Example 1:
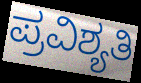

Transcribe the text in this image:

ಪ್ರವಿಶ್ಯತಿ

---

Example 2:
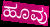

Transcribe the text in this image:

ಹೂವು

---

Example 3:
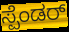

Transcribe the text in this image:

ಸ್ಪೆಂಡರ್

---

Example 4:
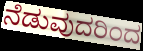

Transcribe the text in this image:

ನೆಡುವುದರಿಂದ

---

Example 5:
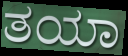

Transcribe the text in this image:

ತಯಾ